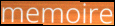
memoire